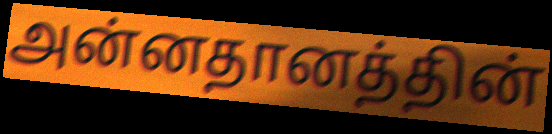
அன்னதானத்தின்